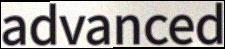
advanced